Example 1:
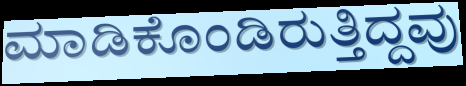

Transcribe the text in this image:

ಮಾಡಿಕೊಂಡಿರುತ್ತಿದ್ದವು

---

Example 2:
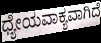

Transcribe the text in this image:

ಧ್ಯೇಯವಾಕ್ಯವಾಗಿದೆ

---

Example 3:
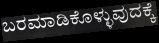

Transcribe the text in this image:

ಬರಮಾಡಿಕೊಳ್ಳುವುದಕ್ಕೆ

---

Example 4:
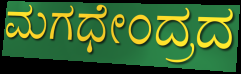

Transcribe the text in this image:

ಮಗಧೇಂದ್ರದ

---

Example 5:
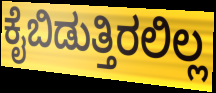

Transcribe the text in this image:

ಕೈಬಿಡುತ್ತಿರಲಿಲ್ಲ